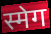
स्मेग